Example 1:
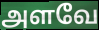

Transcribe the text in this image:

அளவே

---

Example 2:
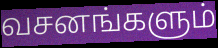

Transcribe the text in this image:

வசனங்களும்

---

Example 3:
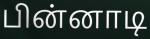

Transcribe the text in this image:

பின்னாடி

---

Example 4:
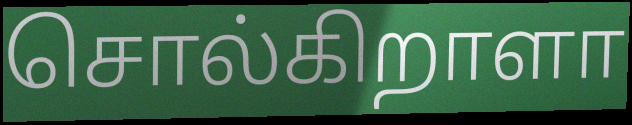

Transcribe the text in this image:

சொல்கிறாளா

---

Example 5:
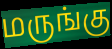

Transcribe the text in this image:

மருங்கு